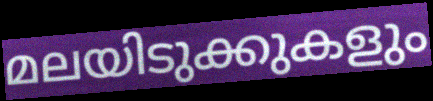
മലയിടുക്കുകളും